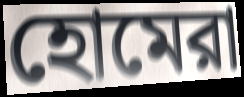
হোমেরা